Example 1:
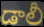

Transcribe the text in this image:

డాలీ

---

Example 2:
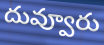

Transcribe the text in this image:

దువ్వూరు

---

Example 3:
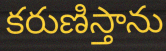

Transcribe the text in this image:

కరుణిస్తాను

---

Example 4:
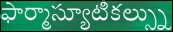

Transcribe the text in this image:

ఫార్మాస్యూటికల్స్ను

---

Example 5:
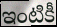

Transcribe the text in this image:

ఇంటికీ